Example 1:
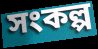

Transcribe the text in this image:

সংকল্প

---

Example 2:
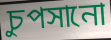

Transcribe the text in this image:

চুপসানো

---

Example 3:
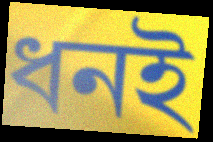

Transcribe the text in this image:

ধনই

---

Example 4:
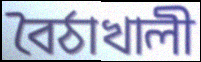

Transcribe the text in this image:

বৈঠাখালী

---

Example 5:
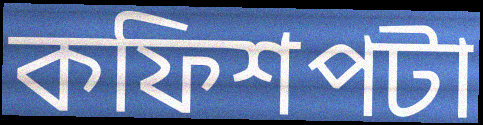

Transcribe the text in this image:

কফিশপটা